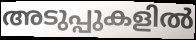
അടുപ്പുകളിൽ